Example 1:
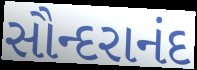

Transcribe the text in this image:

સૌન્દરાનંદ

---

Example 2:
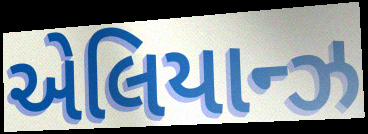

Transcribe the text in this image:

એલિયાન્ઝ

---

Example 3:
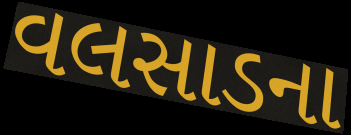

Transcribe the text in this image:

વલસાડના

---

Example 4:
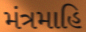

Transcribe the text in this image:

મંત્રમાહિ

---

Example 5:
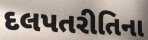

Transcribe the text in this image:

દલપતરીતિના